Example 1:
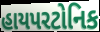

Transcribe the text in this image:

હાયપરટોનિક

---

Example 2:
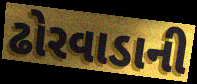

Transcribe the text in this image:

ઢોરવાડાની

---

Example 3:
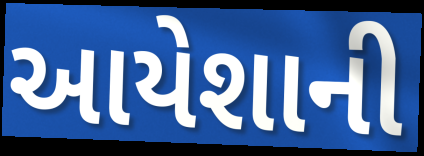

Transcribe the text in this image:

આયેશાની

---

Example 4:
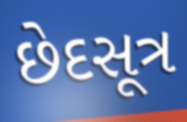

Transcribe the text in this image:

છેદસૂત્ર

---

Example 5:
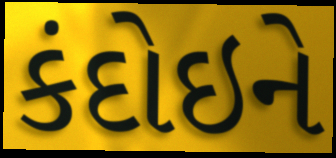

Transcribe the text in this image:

કંદોઇને